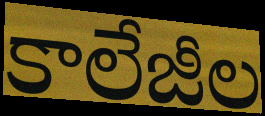
కాలేజీల